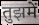
तुझमें